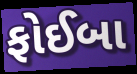
ફોઈબા